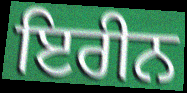
ਇਰੀਨ